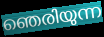
ഞെരിയുന്ന